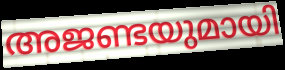
അജണ്ടയുമായി